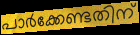
പാർക്കേണ്ടതിന്